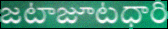
జటాజూటధారి